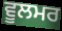
ਵੂਲਮਰ